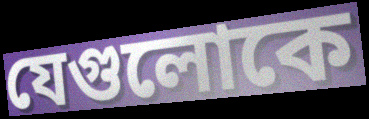
যেগুলোকে